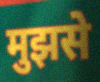
मुझसे